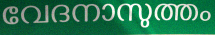
വേദനാസുത്തം